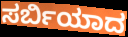
ಸರ್ಬಿಯಾದ